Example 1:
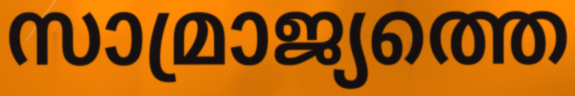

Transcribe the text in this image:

സാമ്രാജ്യത്തെ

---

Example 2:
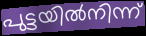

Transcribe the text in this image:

പുട്ടയിൽനിന്ന്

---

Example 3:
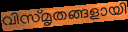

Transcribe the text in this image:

വിസ്മൃതങ്ങളായി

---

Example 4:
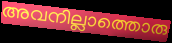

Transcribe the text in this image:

അവനില്ലാത്തൊരു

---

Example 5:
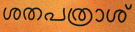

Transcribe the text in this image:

ശതപത്രാശ്